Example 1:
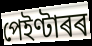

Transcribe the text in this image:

পেইণ্টাৰৰ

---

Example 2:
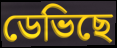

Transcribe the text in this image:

ডেভিছে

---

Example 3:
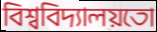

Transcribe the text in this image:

বিশ্ববিদ্যালয়তো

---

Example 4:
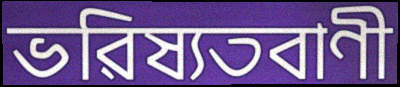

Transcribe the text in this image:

ভৱিষ্যতবাণী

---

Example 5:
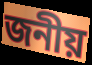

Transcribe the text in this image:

জনীয়